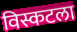
विस्कटला